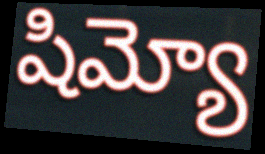
షిమ్యో